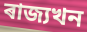
ৰাজ্যখন